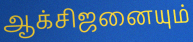
ஆக்சிஜனையும்